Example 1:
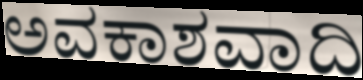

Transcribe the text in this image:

ಅವಕಾಶವಾದಿ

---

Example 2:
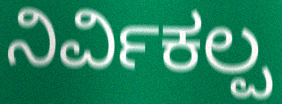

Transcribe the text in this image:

ನಿರ್ವಿಕಲ್ಪ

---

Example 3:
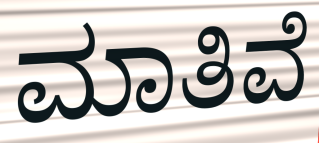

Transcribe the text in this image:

ಮಾತಿವೆ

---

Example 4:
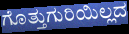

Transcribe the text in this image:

ಗೊತ್ತುಗುರಿಯಿಲ್ಲದ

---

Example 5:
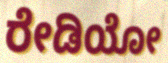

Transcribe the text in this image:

ರೇಡಿಯೋ